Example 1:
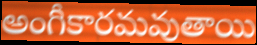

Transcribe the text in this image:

అంగీకారమవుతాయి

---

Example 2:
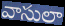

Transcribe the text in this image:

వాసులా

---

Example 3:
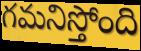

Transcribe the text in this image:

గమనిస్తోంది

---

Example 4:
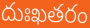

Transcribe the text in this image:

దుఃఖతరం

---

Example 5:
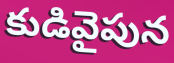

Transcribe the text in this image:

కుడివైపున